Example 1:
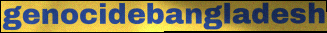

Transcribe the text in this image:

genocidebangladesh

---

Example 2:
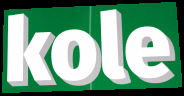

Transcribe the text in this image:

kole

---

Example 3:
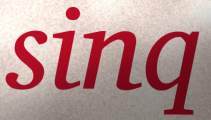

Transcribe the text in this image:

sinq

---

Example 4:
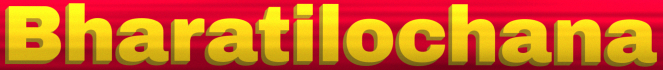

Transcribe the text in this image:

Bharatilochana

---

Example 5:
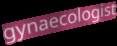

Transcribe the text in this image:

gynaecologist